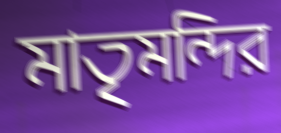
মাতৃমন্দির